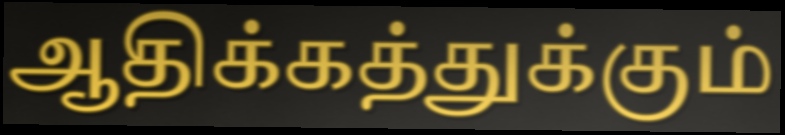
ஆதிக்கத்துக்கும்